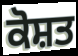
ਕੋਸ਼ਤ